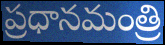
ప్రధానమంత్రి